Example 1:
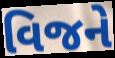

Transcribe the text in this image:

વિજને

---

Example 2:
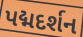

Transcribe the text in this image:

પદ્મદર્શન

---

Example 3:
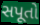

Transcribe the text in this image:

સપૂતો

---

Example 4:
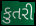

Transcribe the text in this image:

કુતરી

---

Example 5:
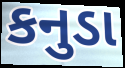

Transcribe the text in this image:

કનુડા